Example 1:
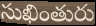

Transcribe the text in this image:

సుఖింతురు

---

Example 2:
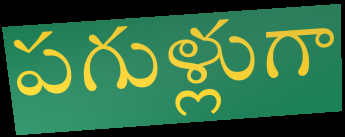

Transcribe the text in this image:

పగుళ్లుగా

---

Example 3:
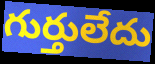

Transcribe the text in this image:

గుర్తులేదు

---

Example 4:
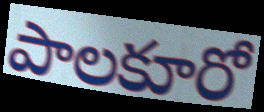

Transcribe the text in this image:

పాలకూరో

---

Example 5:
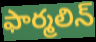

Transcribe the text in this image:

ఫార్మలిన్